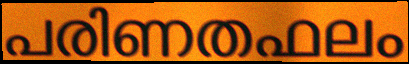
പരിണതഫലം